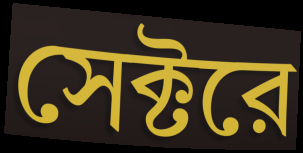
সেক্টরে